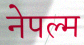
नेपल्म